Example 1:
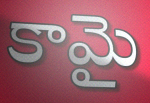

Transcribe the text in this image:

కామై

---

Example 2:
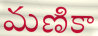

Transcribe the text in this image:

మణికా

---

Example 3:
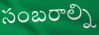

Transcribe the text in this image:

సంబరాల్ని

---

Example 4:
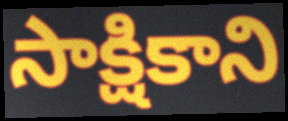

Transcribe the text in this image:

సాక్షికాని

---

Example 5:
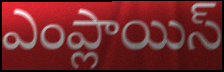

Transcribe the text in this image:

ఎంప్లాయిస్